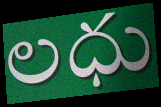
లధు